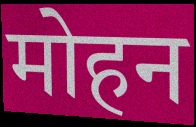
मोहन